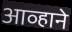
आव्हाने